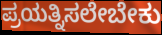
ಪ್ರಯತ್ನಿಸಲೇಬೇಕು